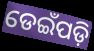
ଡେଇଁପଡ଼ି